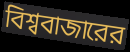
বিশ্ববাজারের